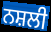
ਨਸ਼ਲੀ